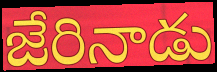
జేరినాడు